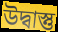
উদ্বাস্তু